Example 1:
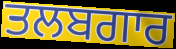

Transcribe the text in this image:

ਤਲਬਗਾਰ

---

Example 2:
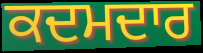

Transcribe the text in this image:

ਕਦਮਦਾਰ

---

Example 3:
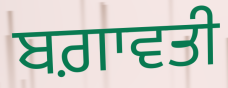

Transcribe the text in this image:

ਬਗ਼ਾਵਤੀ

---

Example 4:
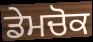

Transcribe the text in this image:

ਡੇਮਚੋਕ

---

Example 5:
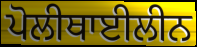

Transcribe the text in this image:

ਪੋਲੀਥਾਈਲੀਨ